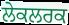
ਲੇਕਲਰਕ